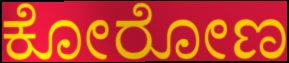
ಕೋರೋಣ